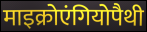
माइक्रोएंगियोपैथी